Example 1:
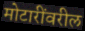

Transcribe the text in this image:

मोटारींवरील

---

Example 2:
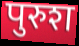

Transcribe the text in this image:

पुरुश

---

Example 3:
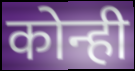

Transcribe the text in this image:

कोन्ही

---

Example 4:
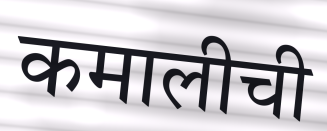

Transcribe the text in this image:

कमालीची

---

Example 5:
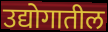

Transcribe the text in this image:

उद्योगातील